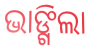
ଭାଙ୍ଗିଲା